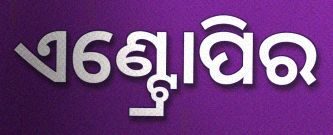
ଏଣ୍ଟ୍ରୋପିର